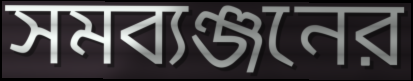
সমব্যঞ্জনের